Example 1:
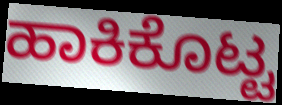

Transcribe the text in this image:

ಹಾಕಿಕೊಟ್ಟ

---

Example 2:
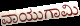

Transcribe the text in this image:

ವಾಯುಗಾಮಿ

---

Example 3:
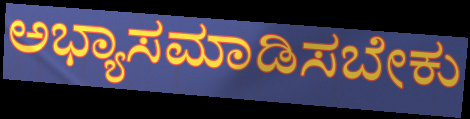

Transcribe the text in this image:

ಅಭ್ಯಾಸಮಾಡಿಸಬೇಕು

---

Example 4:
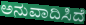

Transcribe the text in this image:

ಅನುವಾದಿಸಿದೆ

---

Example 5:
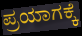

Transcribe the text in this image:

ಪ್ರಯಾಗಕ್ಕೆ